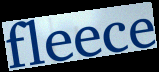
fleece